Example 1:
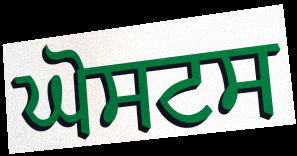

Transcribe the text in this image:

ਘੋਸਟਸ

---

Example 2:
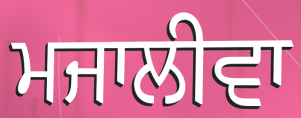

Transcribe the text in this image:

ਮਜਾਲੀਵਾ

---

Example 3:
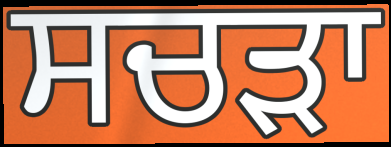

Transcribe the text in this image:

ਸਚੜਾ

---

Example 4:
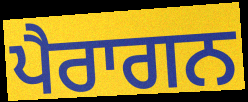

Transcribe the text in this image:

ਪੈਰਾਗਨ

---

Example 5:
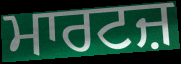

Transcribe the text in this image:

ਮਾਰਟਜ਼